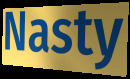
Nasty